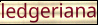
ledgeriana